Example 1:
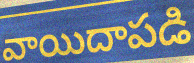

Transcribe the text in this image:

వాయిదాపడి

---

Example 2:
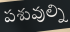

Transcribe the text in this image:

పశువుల్ని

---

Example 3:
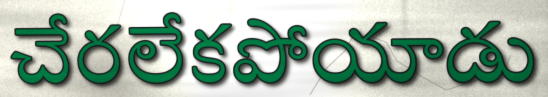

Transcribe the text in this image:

చేరలేకపోయాడు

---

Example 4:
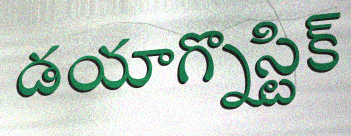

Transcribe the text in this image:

డయాగ్నొస్టిక్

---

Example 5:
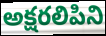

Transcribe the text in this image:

అక్షరలిపిని